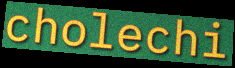
cholechi